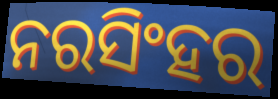
ନରସିଂହର